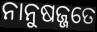
ନାନୁଷଜ୍ଜତେ